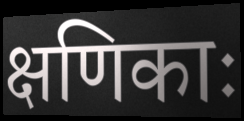
क्षणिकाः